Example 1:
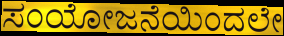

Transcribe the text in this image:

ಸಂಯೋಜನೆಯಿಂದಲೇ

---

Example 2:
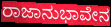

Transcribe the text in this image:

ರಾಜಾನುಭಾವೇನ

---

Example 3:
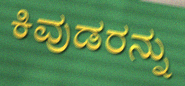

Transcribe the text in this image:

ಕಿವುಡರನ್ನು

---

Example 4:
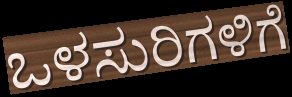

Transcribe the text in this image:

ಒಳಸುರಿಗಳಿಗೆ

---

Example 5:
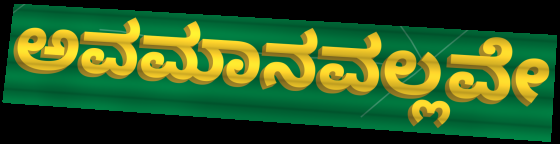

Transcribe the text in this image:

ಅವಮಾನವಲ್ಲವೇ